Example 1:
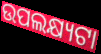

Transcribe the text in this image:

ଉପଲକ୍ଷ୍ୟଟା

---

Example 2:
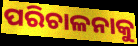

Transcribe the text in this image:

ପରିଚାଳନାକୁ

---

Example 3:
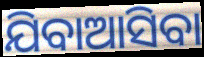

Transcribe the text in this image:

ଯିବାଆସିବା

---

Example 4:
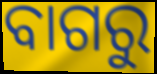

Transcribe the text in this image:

ବାଗରୁ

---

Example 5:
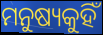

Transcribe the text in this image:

ମନୁଷ୍ୟକୁହିଁ